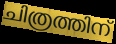
ചിത്രത്തിന്